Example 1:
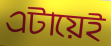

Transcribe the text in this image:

এটায়েই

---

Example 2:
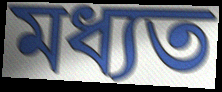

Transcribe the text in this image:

মধ্যত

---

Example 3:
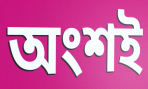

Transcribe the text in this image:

অংশই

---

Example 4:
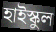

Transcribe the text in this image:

হাইস্কুল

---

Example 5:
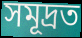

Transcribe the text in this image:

সমূদ্ৰত